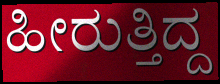
ಹೀರುತ್ತಿದ್ದ